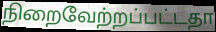
நிறைவேற்றப்பட்டதா